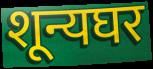
शून्यघर